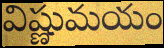
విష్ణుమయం